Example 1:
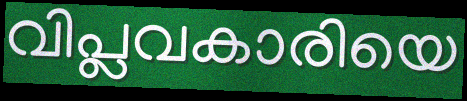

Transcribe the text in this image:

വിപ്ലവകാരിയെ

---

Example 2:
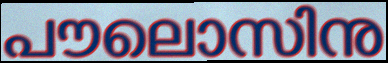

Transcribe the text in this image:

പൗലൊസിനു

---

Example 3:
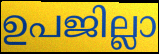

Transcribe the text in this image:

ഉപജില്ലാ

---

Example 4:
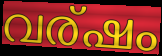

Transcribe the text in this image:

വര്ഷം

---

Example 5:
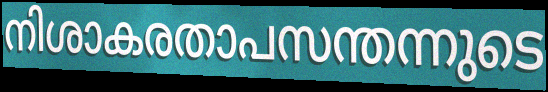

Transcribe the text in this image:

നിശാകരതാപസന്തന്നുടെ